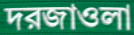
দরজাওলা